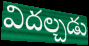
విదల్చడు